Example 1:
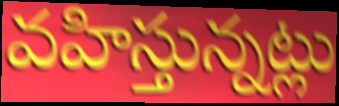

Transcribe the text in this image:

వహిస్తున్నట్లు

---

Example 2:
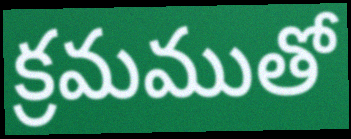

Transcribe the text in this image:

క్రమముతో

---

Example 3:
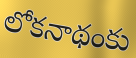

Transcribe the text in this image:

లోకనాథంకు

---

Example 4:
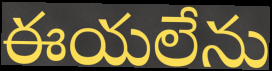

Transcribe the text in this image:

ఈయలేను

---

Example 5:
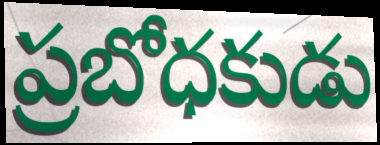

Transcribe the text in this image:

ప్రబోధకుడు